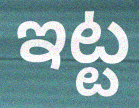
ఇట్ట